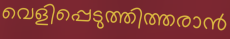
വെളിപ്പെടുത്തിത്തരാൻ